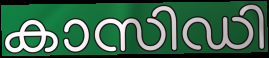
കാസിഡി